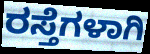
ರಸ್ತೆಗಳಾಗಿ